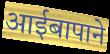
आईबापाने